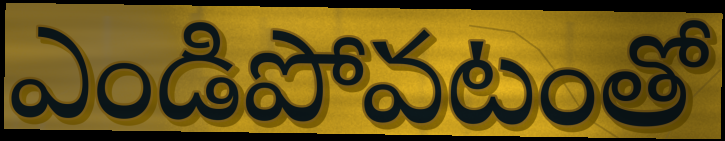
ఎండిపోవటంతో